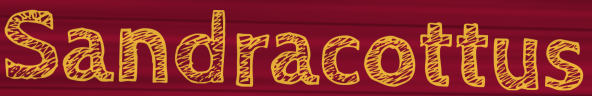
Sandracottus